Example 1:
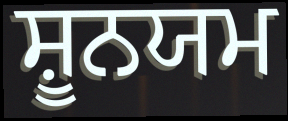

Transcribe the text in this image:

ਸ਼ੂਨਯਮ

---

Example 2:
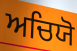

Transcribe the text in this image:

ਅਚਿਯੋ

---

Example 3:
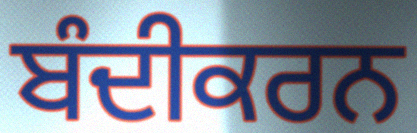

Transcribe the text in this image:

ਬੰਦੀਕਰਨ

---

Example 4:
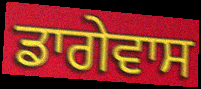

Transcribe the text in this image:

ਡਾਗੇਵਾਸ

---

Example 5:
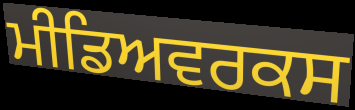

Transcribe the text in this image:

ਮੀਡਿਅਵਰਕਸ